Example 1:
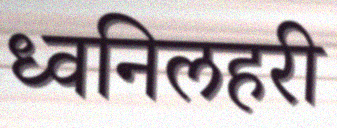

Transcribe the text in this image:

ध्वनिलहरी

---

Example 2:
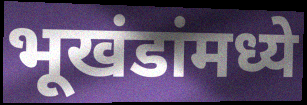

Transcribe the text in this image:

भूखंडांमध्ये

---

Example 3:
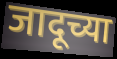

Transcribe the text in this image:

जादूच्या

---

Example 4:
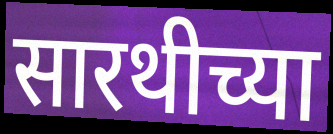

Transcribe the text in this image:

सारथीच्या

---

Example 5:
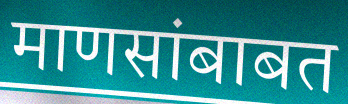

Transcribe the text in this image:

माणसांबाबत